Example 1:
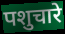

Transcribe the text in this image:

पशुचारे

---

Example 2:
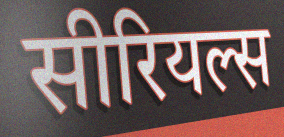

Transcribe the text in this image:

सीरियल्स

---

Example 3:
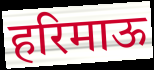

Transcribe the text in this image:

हरिमाऊ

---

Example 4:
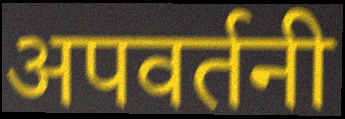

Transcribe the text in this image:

अपवर्तनी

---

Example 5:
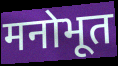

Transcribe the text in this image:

मनोभूत